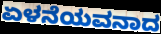
ಏಳನೆಯವನಾದ